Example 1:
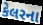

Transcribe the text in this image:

કેલરના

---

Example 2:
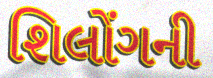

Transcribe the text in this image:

શિલોંગની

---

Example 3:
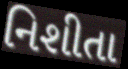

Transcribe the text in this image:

નિશીતા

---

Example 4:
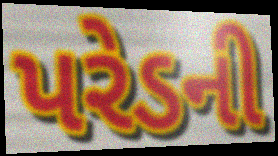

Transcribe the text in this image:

પરેડની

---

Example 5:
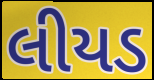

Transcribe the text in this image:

લીયડ